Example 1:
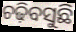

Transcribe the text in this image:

ଚଢ଼ିବସୁଛି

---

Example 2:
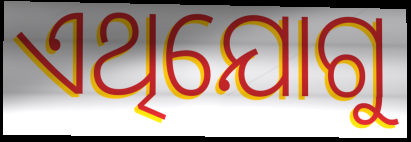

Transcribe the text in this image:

ଏଥିଯୋଗୁ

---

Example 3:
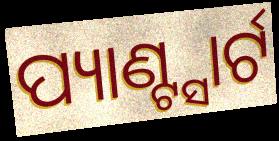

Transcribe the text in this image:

ପ୍ୟାଣ୍ଟ୍ସାର୍ଟ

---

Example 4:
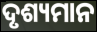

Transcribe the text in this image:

ଦୃଶ୍ୟମାନ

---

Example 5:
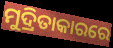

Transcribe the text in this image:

ମୁଦ୍ରିତାକାରରେ